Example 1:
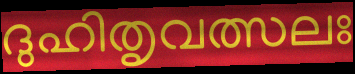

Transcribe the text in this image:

ദുഹിതൃവത്സലഃ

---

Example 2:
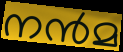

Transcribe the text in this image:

നൻമ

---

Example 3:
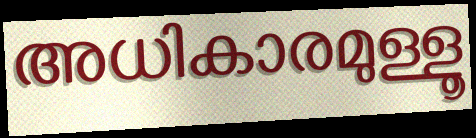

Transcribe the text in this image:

അധികാരമുള്ളൂ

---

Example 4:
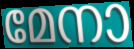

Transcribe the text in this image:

മേനാ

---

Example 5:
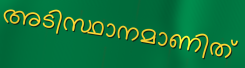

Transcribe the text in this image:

അടിസ്ഥാനമാണിത്